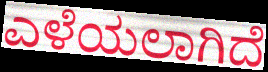
ಎಳೆಯಲಾಗಿದೆ